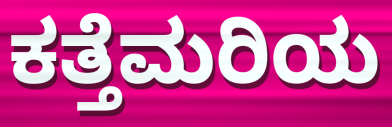
ಕತ್ತೆಮರಿಯ